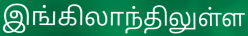
இங்கிலாந்திலுள்ள